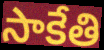
సాకేతి